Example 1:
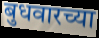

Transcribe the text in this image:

बुधवारच्या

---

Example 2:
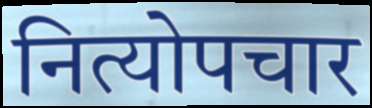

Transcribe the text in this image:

नित्योपचार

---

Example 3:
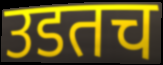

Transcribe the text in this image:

उडतच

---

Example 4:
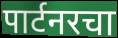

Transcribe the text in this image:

पार्टनरचा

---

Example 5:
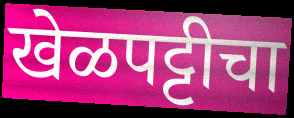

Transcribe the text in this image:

खेळपट्टीचा